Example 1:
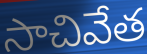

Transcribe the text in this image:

సాచివేత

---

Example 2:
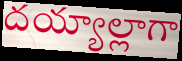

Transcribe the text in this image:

దయ్యాల్లాగా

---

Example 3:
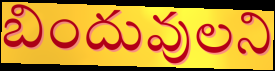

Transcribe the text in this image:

బిందువులని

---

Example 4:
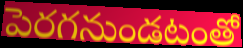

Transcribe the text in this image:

పెరగనుండటంతో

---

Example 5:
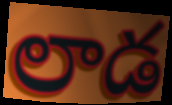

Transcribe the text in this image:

లాడ